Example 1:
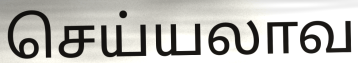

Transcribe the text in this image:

செய்யலாவ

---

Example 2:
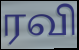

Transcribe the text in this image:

ரவி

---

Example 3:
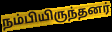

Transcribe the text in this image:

நம்பியிருந்தனர்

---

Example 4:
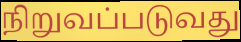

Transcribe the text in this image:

நிறுவப்படுவது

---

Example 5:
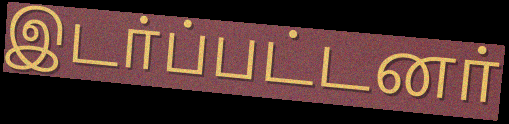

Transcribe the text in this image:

இடர்ப்பட்டனர்